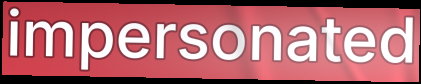
impersonated